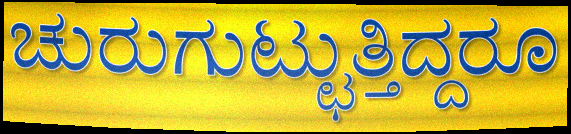
ಚುರುಗುಟ್ಟುತ್ತಿದ್ದರೂ